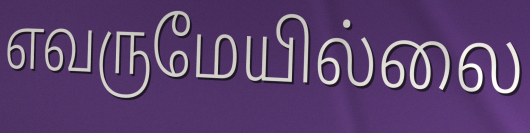
எவருமேயில்லை